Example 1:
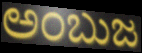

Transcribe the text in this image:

ಅಂಬುಜ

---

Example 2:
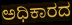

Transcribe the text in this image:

ಅಧಿಕಾರದ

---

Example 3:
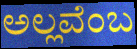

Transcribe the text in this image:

ಅಲ್ಲವೆಂಬ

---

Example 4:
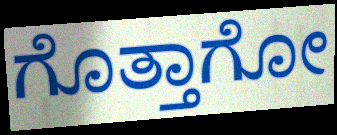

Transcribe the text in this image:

ಗೊತ್ತಾಗೋ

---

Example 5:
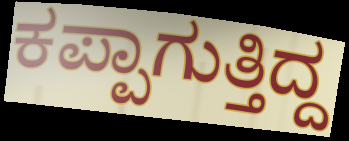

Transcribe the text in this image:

ಕಪ್ಪಾಗುತ್ತಿದ್ದ